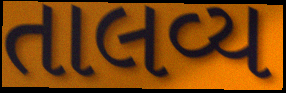
તાલવ્ય